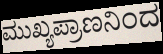
ಮುಖ್ಯಪ್ರಾಣನಿಂದ